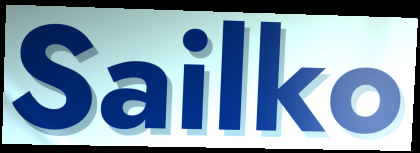
Sailko